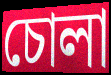
চোলা